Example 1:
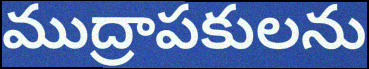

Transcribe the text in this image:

ముద్రాపకులను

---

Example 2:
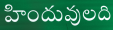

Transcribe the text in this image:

హిందువులది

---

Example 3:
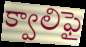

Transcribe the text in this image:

క్వాలిఫై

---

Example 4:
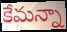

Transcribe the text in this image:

కేమన్నా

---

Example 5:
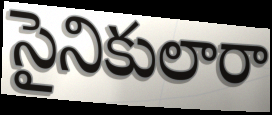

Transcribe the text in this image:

సైనికులారా